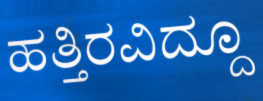
ಹತ್ತಿರವಿದ್ದೂ